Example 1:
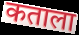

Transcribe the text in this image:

कताला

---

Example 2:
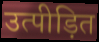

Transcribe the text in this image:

उत्पीड़ित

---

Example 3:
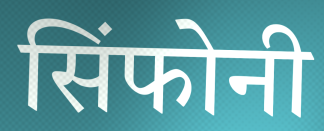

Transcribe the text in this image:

सिंफोनी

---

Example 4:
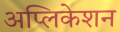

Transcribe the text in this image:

अप्लिकेशन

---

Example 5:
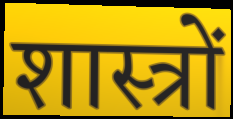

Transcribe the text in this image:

शास्त्रों